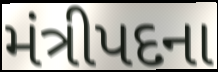
મંત્રીપદના